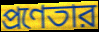
প্রণেতার